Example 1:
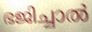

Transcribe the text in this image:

ഭജിച്ചാൽ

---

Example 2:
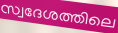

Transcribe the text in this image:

സ്വദേശത്തിലെ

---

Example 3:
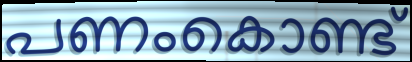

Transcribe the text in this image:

പണംകൊണ്ട്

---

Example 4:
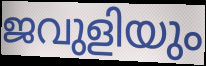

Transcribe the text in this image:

ജവുളിയും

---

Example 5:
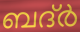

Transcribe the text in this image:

ബദ്ർ